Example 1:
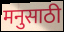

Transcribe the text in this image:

मनुसाठी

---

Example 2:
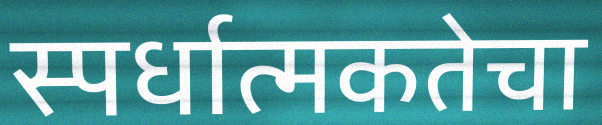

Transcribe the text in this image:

स्पर्धात्मकतेचा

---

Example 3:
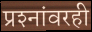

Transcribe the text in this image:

प्रश्नांवरही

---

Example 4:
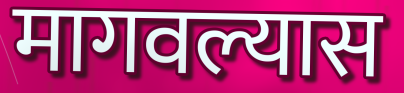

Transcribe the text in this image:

मागवल्यास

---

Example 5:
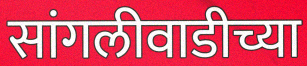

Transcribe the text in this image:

सांगलीवाडीच्या